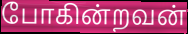
போகின்றவன்